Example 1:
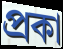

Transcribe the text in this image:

প্রকা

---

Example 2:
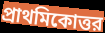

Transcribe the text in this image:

প্রাথমিকোত্তর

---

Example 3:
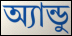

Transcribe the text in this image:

অ্যান্ডু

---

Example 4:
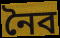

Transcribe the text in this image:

নৈব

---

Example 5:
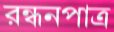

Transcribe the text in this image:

রন্ধনপাত্র